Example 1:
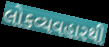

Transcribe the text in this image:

લોકવ્યવહારથી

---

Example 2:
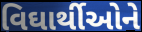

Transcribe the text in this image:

વિઘાર્થીઓને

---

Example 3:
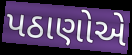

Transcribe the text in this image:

પઠાણોએ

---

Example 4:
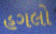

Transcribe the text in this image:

હગલો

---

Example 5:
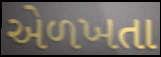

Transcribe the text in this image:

એળખતા